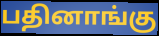
பதினாங்கு